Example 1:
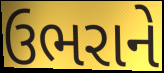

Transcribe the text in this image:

ઉભરાને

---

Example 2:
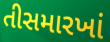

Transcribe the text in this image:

તીસમારખાં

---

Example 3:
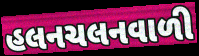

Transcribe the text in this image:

હલનચલનવાળી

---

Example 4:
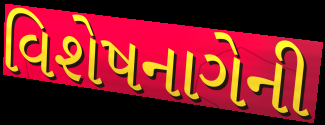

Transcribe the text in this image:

વિશેષનાગેની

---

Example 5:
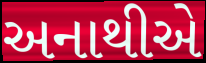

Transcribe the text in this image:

અનાથીએ